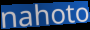
nahoto